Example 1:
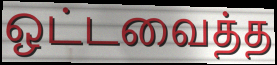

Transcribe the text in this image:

ஒட்டவைத்த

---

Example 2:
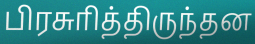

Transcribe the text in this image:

பிரசுரித்திருந்தன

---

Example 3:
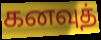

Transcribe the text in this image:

கனவுத்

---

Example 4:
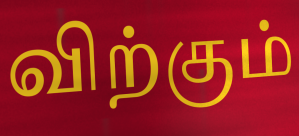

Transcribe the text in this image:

விற்கும்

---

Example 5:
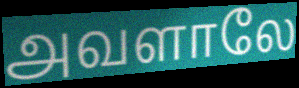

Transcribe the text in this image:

அவளாலே